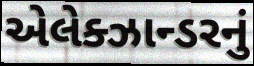
એલેક્ઝાન્ડરનું